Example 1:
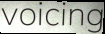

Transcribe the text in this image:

voicing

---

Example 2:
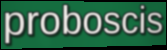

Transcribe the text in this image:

proboscis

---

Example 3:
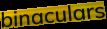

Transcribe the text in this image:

binaculars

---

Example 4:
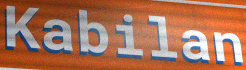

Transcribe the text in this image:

Kabilan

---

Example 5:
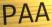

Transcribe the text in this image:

PAA